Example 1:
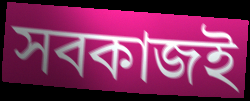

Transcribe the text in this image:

সবকাজই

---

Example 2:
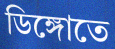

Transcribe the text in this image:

ডিঙ্গোতে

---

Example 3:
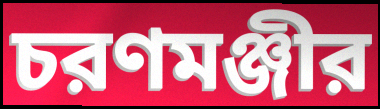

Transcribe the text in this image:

চরণমঞ্জীর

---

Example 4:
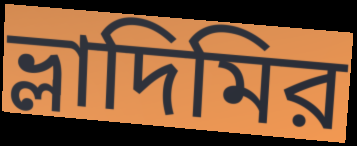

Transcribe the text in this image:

ভ্লাদিমির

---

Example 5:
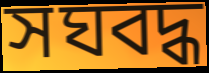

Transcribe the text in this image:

সঘবদ্ধ